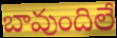
బావుందిలే